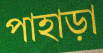
পাহাড়া